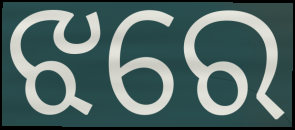
ଝରେ